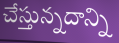
చేస్తున్నదాన్ని